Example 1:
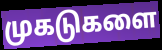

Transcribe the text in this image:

முகடுகளை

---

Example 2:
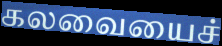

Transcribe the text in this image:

கலவையைச்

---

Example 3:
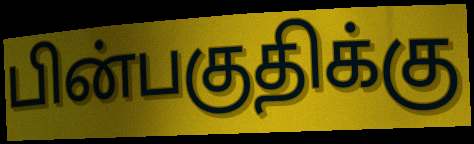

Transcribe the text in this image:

பின்பகுதிக்கு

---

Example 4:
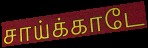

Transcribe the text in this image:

சாய்க்காடே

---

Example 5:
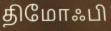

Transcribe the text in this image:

திமோஃபி